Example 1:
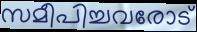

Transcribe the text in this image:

സമീപിച്ചവരോട്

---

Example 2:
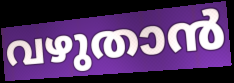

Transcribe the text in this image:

വഴുതാൻ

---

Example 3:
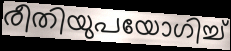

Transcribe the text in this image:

രീതിയുപയോഗിച്ച്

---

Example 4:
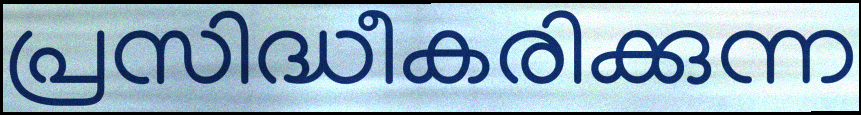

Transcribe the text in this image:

പ്രസിദ്ധീകരിക്കുന്ന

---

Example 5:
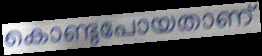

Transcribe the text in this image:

കൊണ്ടുപോയതാണ്